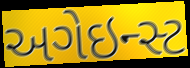
અગેઇન્સ્ટ